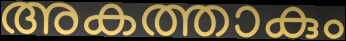
അകത്താകും